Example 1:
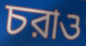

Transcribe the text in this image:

চরাও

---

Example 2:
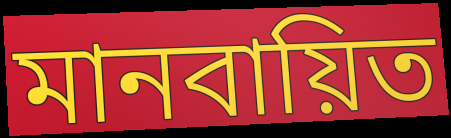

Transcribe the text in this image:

মানবায়িত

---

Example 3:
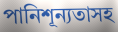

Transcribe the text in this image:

পানিশূন্যতাসহ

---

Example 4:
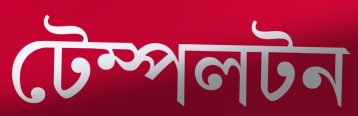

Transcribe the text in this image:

টেম্পলটন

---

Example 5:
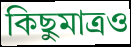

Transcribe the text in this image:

কিছুমাত্রও